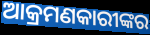
ଆକ୍ରମଣକାରୀଙ୍କର